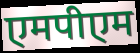
एमपीएम